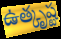
ఉత్కృష్ట